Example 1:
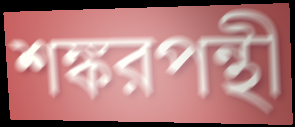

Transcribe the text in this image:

শঙ্করপন্থী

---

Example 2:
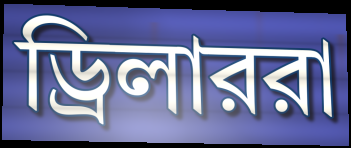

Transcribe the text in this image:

ড্রিলাররা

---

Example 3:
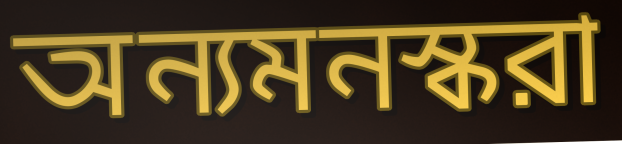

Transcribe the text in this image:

অন্যমনস্করা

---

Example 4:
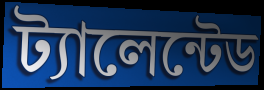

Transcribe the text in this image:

ট্যালেন্টেড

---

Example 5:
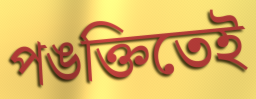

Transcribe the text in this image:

পঙক্তিতেই